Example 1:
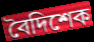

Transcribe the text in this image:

বৈদিশেক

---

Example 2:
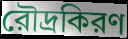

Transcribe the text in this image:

রৌদ্রকিরণ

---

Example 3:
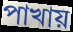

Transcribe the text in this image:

পাখায়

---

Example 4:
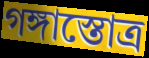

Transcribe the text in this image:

গঙ্গাস্তোত্র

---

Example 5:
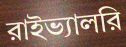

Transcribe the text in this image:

রাইভ্যালরি